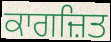
ਕਾਗਜ਼ਿਤ